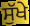
ਸੁੱਖੇ